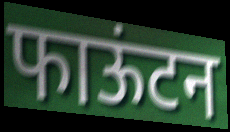
फाऊंटन